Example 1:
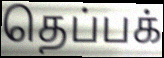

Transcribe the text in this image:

தெப்பக்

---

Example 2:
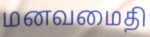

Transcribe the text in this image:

மனவமைதி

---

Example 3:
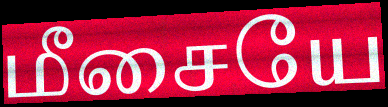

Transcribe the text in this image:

மீசையே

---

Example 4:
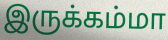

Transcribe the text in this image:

இருக்கம்மா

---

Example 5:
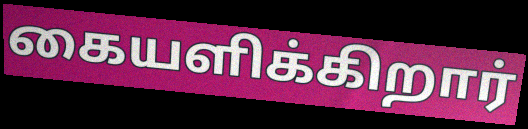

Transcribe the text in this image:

கையளிக்கிறார்